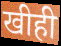
खीही